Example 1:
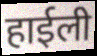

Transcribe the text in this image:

हाईली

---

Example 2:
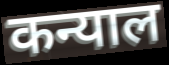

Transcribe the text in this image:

कन्याल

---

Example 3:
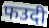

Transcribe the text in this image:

फउदी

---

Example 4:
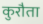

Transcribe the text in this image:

कुरौता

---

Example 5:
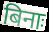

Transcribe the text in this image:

बिनाः